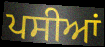
ਪਸੀਆਂ